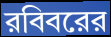
রবিবরের